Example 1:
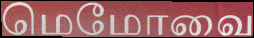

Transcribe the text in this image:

மெமோவை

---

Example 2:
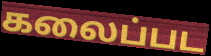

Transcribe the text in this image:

கலைப்பட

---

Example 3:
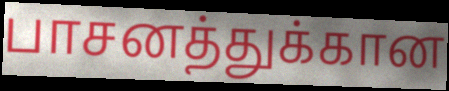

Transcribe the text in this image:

பாசனத்துக்கான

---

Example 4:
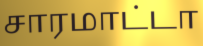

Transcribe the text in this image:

சாரமாட்டா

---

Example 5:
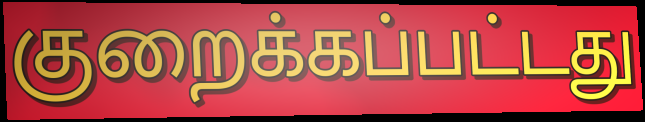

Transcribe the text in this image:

குறைக்கப்பட்டது